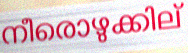
നീരൊഴുക്കില്